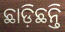
ଛାଡ଼ିଛନ୍ତି